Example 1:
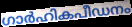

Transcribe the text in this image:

ഗാർഹികപീഡനം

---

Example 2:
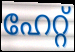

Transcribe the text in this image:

ഹേറ്റ്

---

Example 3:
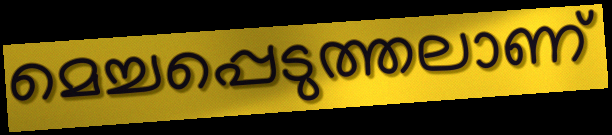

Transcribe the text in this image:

മെച്ചപ്പെടുത്തലാണ്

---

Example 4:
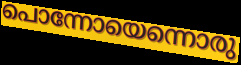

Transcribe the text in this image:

പൊന്നോയെന്നൊരു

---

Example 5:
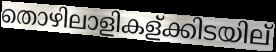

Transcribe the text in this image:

തൊഴിലാളികള്ക്കിടയില്